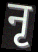
नृ